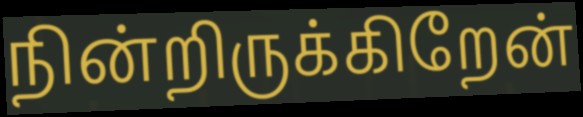
நின்றிருக்கிறேன்